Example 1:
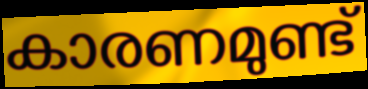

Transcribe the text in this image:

കാരണമുണ്ട്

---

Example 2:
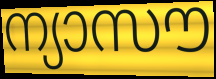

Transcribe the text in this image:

ന്യാസൗ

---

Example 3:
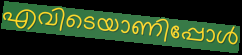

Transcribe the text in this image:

എവിടെയാണിപ്പോൾ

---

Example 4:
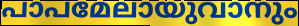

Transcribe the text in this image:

പാപമേലായുവാനും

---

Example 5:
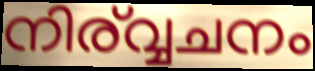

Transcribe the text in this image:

നിര്വ്വചനം